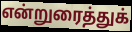
என்றுரைத்துக்